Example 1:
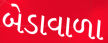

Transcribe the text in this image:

બેડાવાળા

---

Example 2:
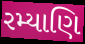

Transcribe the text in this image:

રમ્યાણિ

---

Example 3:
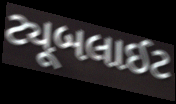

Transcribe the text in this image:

ટ્યૂબલાઈટ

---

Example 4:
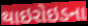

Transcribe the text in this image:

થાઇરોઇડના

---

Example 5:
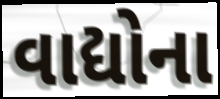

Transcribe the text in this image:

વાદ્યોના